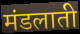
मंडलाती